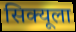
सिक्यूला